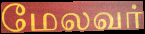
மேலவர்